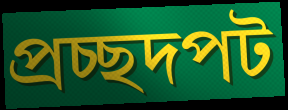
প্রচ্ছদপট